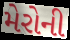
મેરોની